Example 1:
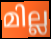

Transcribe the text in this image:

മില്ല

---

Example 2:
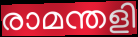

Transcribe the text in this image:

രാമന്തളി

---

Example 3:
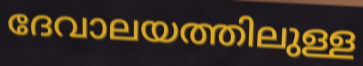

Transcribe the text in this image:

ദേവാലയത്തിലുള്ള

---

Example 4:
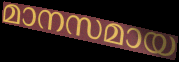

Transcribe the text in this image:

മാനസമായ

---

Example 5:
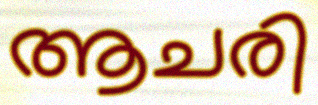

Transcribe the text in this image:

ആചരി